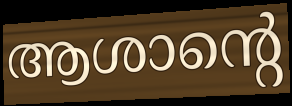
ആശാന്റെ